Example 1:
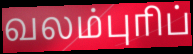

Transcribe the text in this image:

வலம்புரிப்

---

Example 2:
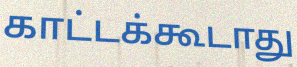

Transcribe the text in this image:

காட்டக்கூடாது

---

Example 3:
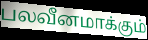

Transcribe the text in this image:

பலவீனமாக்கும்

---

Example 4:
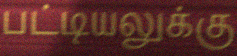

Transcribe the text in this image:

பட்டியலுக்கு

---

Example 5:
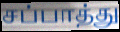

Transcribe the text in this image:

சப்பாத்து